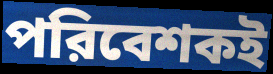
পরিবেশকই